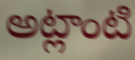
అట్లాంటి